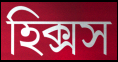
হিক্সস